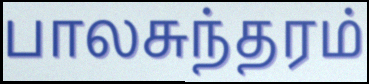
பாலசுந்தரம்